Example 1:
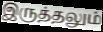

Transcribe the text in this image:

இருத்தலும்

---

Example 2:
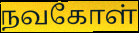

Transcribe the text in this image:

நவகோள்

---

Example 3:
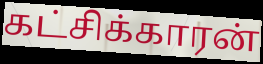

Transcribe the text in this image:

கட்சிக்காரன்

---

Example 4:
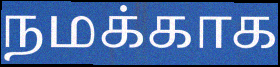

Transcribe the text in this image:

நமக்காக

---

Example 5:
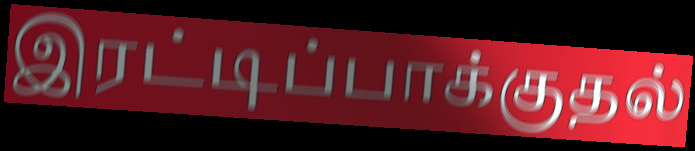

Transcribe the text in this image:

இரட்டிப்பாக்குதல்